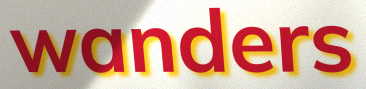
wanders